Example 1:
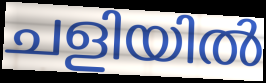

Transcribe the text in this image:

ചളിയിൽ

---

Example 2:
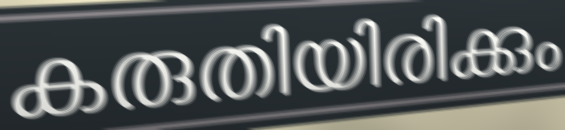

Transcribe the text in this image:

കരുതിയിരിക്കും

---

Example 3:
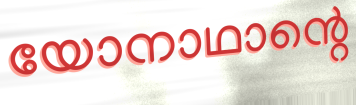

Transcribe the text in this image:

യോനാഥാന്റെ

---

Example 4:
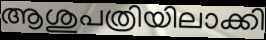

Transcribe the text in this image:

ആശുപത്രിയിലാക്കി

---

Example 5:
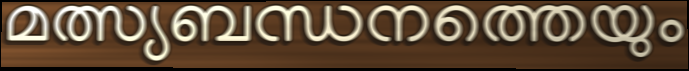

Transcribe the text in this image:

മത്സ്യബന്ധനത്തെയും